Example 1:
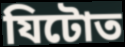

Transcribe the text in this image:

যিটোত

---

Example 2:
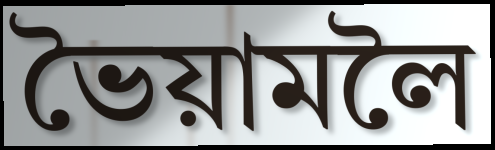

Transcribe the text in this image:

ভৈয়ামলৈ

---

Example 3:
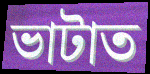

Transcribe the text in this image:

ভাটাত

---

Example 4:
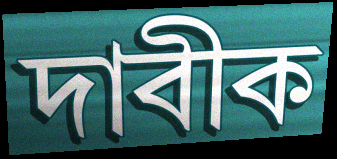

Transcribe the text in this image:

দাবীক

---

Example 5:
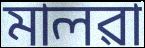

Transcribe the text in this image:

মালৱা